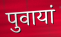
पुवायां